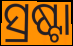
ସ୍ରଷ୍ଟା